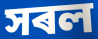
সৰল